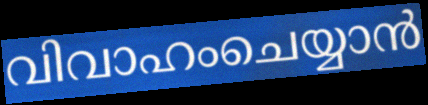
വിവാഹംചെയ്യാൻ